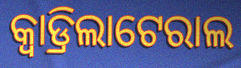
କ୍ୱାଡ୍ରିଲାଟେରାଲ